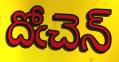
దోఁచెన్